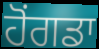
ਹੋਂਗਡਾ